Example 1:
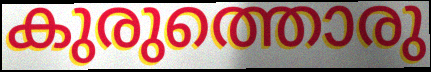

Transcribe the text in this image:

കുരുത്തൊരു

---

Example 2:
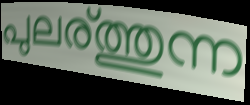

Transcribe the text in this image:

പുലര്ത്തുന്ന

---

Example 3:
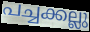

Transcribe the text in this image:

പച്ചക്കല്ലു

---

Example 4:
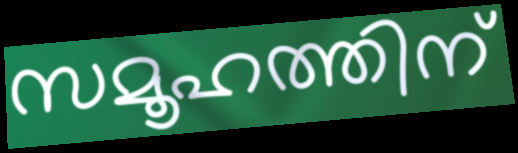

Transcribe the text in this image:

സമൂഹത്തിന്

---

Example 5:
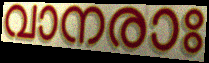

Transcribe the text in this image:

വാനരാഃ